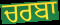
ਚਰਬਾ